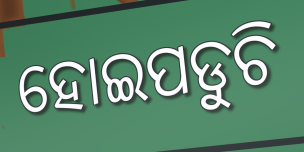
ହୋଇପଡୁଚି